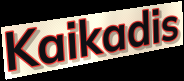
Kaikadis